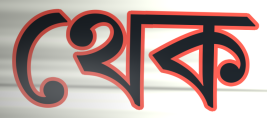
থেক